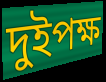
দুইপক্ষ